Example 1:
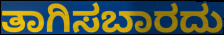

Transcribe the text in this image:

ತಾಗಿಸಬಾರದು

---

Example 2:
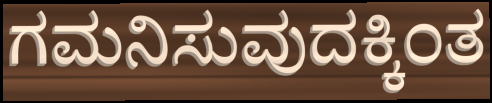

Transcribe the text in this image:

ಗಮನಿಸುವುದಕ್ಕಿಂತ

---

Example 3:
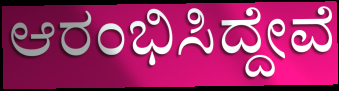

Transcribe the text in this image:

ಆರಂಭಿಸಿದ್ದೇವೆ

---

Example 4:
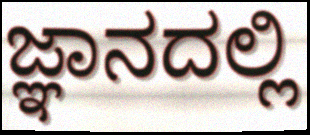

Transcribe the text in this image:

ಜ್ಞಾನದಲ್ಲಿ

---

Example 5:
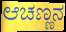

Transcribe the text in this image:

ಆಚಣ್ಣನ